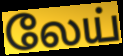
லேய்